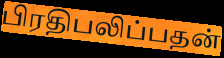
பிரதிபலிப்பதன்